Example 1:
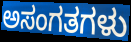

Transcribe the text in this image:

ಅಸಂಗತಗಳು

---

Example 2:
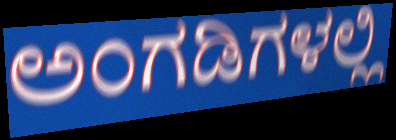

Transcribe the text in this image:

ಅಂಗಡಿಗಳಲ್ಲಿ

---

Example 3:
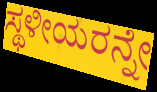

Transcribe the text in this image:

ಸ್ಥಳೀಯರನ್ನೇ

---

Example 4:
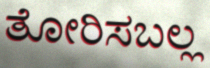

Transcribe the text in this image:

ತೋರಿಸಬಲ್ಲ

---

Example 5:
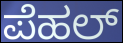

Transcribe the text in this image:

ಪೆಹಲ್